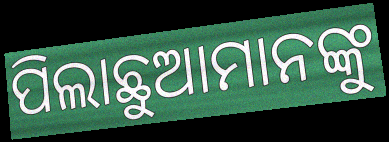
ପିଲାଛୁଆମାନଙ୍କୁ